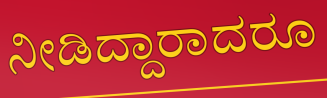
ನೀಡಿದ್ದಾರಾದರೂ